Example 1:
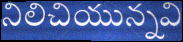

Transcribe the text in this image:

నిలిచియున్నవి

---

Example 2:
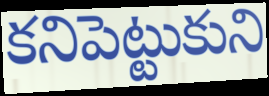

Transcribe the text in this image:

కనిపెట్టుకుని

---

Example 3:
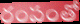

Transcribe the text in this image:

రంపంతో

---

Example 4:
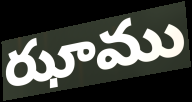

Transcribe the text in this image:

ఝాము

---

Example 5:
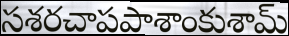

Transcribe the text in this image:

సశరచాపపాశాంకుశామ్